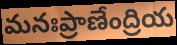
మనఃప్రాణేంద్రియ